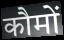
कौमों